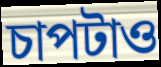
চাপটাও